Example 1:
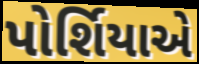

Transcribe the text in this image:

પોર્શિયાએ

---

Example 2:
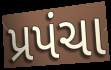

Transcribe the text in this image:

પ્રપંચા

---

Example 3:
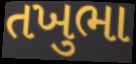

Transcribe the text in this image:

તખુભા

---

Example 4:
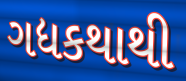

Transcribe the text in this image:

ગદ્યકથાથી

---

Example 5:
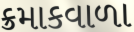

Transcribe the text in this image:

ક્રમાકવાળા